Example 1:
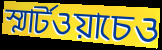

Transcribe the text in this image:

স্মার্টওয়াচেও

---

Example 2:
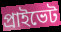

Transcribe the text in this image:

প্রাইভেট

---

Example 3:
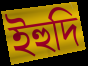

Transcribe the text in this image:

ইহুদি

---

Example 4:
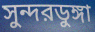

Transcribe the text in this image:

সুন্দরডুঙ্গা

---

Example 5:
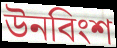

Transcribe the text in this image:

উনবিংশ